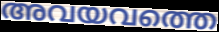
അവയവത്തെ